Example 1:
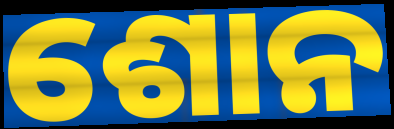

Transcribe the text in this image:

ଶୋନ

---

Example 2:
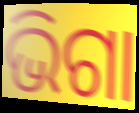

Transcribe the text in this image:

ଭିଗା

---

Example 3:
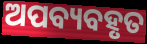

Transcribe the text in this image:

ଅପବ୍ୟବହୃତ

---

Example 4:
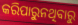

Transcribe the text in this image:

କରିପାରୁନଥିବାରୁ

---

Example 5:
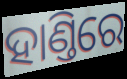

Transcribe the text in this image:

ହାଣ୍ତିରେ